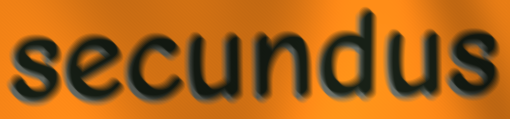
secundus